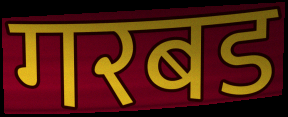
गरबड